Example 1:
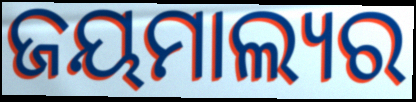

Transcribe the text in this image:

ଜୟମାଲ୍ୟର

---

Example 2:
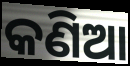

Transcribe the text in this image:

କଣିଆ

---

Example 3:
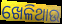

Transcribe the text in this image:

ଖେଳିଥାଉ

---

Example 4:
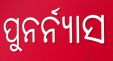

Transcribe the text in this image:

ପୁନର୍ନ୍ୟାସ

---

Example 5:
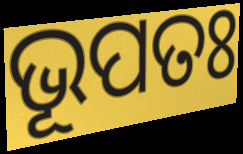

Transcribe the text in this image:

ଭୂପତଃ